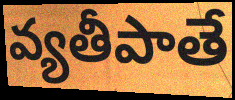
వ్యతీపాతే